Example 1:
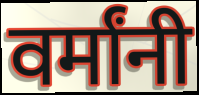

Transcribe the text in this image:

वर्मांनी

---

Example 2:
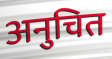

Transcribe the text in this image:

अनुचित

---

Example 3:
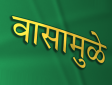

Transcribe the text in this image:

वासामुळे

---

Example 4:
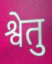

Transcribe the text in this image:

श्वेतु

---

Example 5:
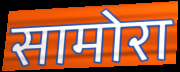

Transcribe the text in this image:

सामोरा